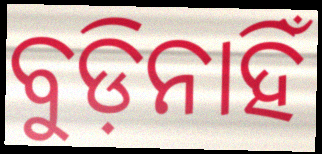
ବୁଡ଼ିନାହିଁ